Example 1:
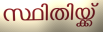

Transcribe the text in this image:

സ്ഥിതിയ്ക്ക്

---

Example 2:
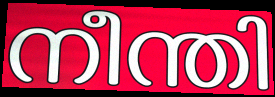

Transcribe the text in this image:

നീന്തി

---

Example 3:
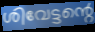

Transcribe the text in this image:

ശിവേട്ടന്റെ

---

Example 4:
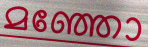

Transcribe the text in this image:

മഞ്ഞോ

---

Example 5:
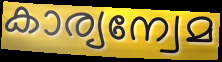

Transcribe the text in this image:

കാര്യന്വേമ